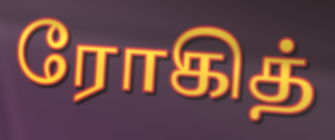
ரோகித்